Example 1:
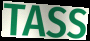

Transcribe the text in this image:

TASS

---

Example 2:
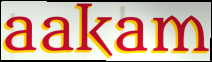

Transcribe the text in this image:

aakam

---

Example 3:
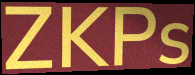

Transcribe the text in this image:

ZKPs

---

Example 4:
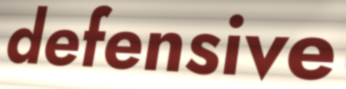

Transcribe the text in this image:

defensive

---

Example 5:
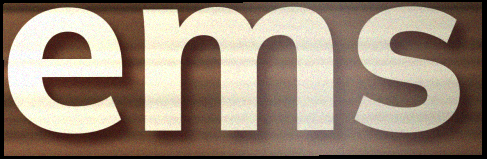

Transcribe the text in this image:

ems